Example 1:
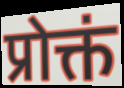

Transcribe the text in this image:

प्रोक्तं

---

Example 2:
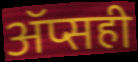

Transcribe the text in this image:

ॲप्सही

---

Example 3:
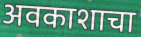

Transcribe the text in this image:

अवकाशाचा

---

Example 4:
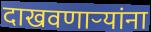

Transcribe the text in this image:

दाखवणाऱ्यांना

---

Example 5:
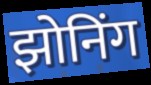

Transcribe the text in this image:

झोनिंग